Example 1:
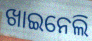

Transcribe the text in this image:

ଖାଇନେଲି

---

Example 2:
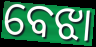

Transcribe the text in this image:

ବେଝା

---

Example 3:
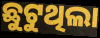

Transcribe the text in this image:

ଛୁଟୁଥିଲା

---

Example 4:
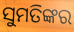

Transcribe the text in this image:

ସୁମତିଙ୍କର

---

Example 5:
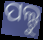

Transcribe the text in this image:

ପଲ୍ଟୁ